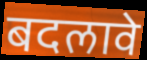
बदलावे